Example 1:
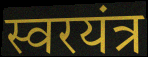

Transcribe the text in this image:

स्वरयंत्र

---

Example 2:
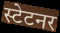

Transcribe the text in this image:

स्टेटनर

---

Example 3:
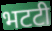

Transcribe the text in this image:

भटटी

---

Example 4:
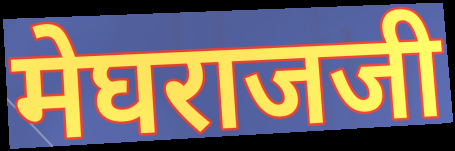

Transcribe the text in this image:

मेघराजजी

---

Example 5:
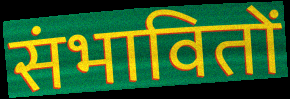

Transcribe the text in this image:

संभावितों